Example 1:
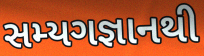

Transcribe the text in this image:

સમ્યગજ્ઞાનથી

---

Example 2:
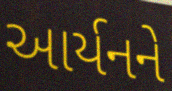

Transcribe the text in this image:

આર્યનને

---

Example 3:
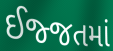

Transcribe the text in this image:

ઈજ્જતમાં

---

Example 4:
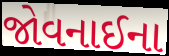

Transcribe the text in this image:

જોવનાઈના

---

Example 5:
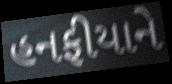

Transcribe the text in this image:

હનફીયાને